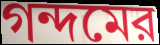
গন্দমের